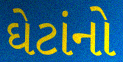
ઘેટાંનો